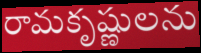
రామకృష్ణులను